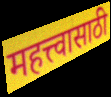
महत्त्वासाठी